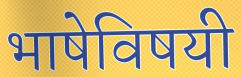
भाषेविषयी